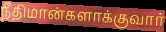
நீதிமான்களாக்குவார்